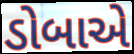
ડોબાએ